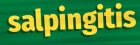
salpingitis